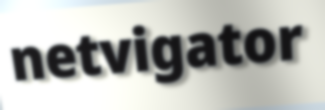
netvigator